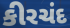
કીરચંદ